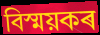
বিস্ময়কৰ